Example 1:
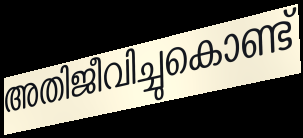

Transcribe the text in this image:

അതിജീവിച്ചുകൊണ്ട്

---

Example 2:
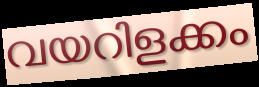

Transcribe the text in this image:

വയറിളക്കം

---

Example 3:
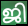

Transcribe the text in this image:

ജി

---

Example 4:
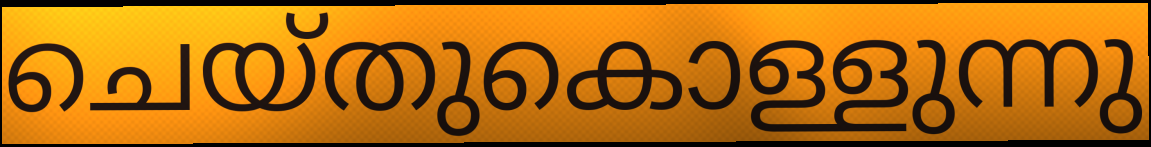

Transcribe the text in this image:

ചെയ്തുകൊള്ളുന്നു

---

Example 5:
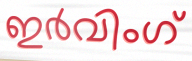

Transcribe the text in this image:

ഇർവിംഗ്